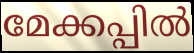
മേക്കപ്പിൽ